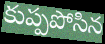
కుప్పపోసిన